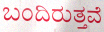
ಬಂದಿರುತ್ತವೆ